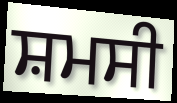
ਸ਼ਮਸੀ